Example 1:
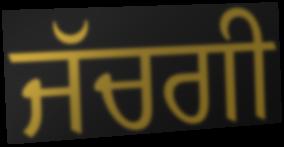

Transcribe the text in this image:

ਜੱਚਗੀ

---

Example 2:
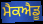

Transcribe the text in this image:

ਮੈਕਐਡੂ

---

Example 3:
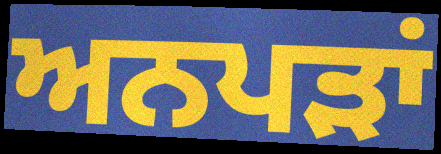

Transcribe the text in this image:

ਅਨਪੜਾਂ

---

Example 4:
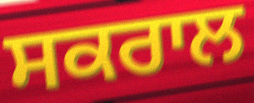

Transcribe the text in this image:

ਸਕਰਾਲ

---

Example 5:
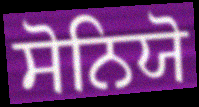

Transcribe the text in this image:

ਸੋਨਿਯੋ